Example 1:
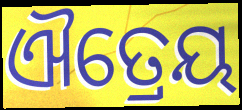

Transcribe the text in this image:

ଐତ୍ରେୟ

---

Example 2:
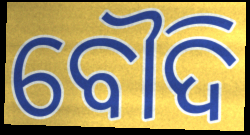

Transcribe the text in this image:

ବୌଦି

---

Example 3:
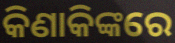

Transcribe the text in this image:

କିଣାକିଙ୍କରେ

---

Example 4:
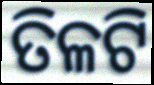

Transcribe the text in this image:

ତିଳଟି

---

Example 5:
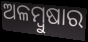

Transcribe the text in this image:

ଅଳମ୍ବୁଷାର